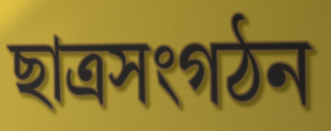
ছাত্রসংগঠন